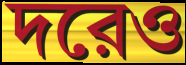
দরেও